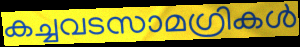
കച്ചവടസാമഗ്രികൾ